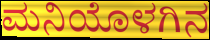
ಮನಿಯೊಳಗಿನ